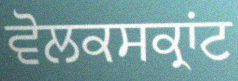
ਵੋਲਕਸਕ੍ਰਾਂਟ